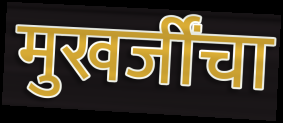
मुखर्जींचा